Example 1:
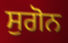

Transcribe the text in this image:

ਸੁਗੋਨ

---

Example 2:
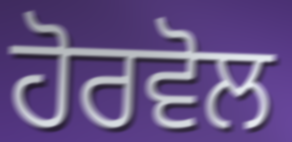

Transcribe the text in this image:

ਹੋਰਵੋਲ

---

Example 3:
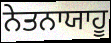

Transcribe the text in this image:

ਨੇਤਨਾਯਾਹੂ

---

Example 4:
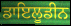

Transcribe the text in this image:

ਡਾਇਲੂਡੀਨ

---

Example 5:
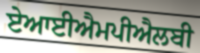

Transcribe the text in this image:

ਏਆਈਐਮਪੀਐਲਬੀ